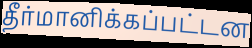
தீர்மானிக்கப்பட்டன